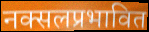
नक्सलप्रभावित